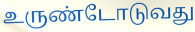
உருண்டோடுவது